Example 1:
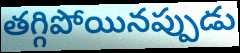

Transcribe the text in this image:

తగ్గిపోయినప్పుడు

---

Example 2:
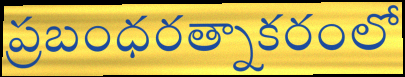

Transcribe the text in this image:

ప్రబంధరత్నాకరంలో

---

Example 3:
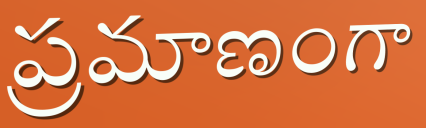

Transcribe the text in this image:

ప్రమాణంగా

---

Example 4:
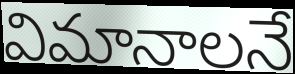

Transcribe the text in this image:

విమానాలనే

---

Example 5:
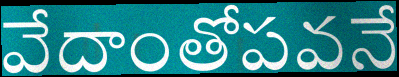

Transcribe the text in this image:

వేదాంతోపవనే